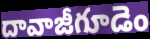
దావాజీగూడెం